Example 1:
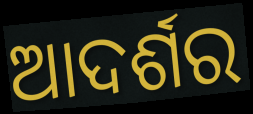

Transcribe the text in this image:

ଆଦର୍ଶର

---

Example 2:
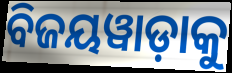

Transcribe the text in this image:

ବିଜୟୱାଡ଼ାକୁ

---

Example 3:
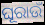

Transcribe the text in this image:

ଘୂରାଉଁ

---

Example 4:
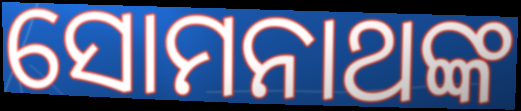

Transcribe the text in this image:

ସୋମନାଥଙ୍କ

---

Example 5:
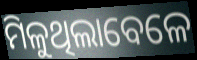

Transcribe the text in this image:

ମିଳୁଥିଲାବେଳେ